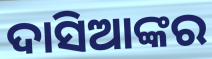
ଦାସିଆଙ୍କର